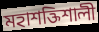
মহাশক্তিশালী